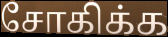
சோகிக்க